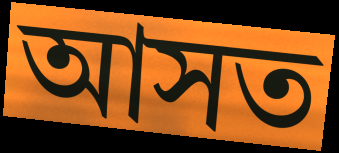
আসত